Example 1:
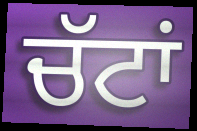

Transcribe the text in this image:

ਚੱਟਾਂ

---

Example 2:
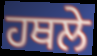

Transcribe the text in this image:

ਹਥਲੇ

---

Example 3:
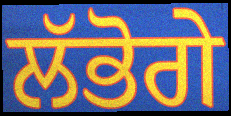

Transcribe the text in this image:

ਲੱਭੋਗੇ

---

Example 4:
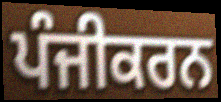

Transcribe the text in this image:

ਪੰਜੀਕਰਨ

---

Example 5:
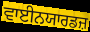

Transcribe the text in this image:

ਵਾਈਨਯਾਰਡਜ਼